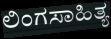
ಲಿಂಗಸಾಹಿತ್ಯ